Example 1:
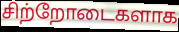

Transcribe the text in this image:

சிற்றோடைகளாக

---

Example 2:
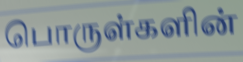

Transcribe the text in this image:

பொருள்களின்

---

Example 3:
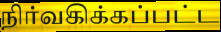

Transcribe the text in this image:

நிர்வகிக்கப்பட்ட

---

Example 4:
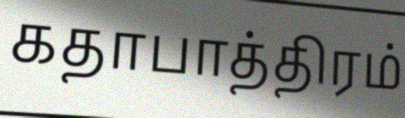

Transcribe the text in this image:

கதாபாத்திரம்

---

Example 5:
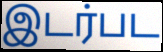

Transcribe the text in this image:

இடர்பட